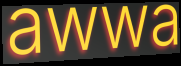
awwa